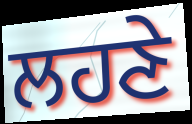
ਲਹਣੇ